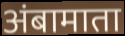
अंबामाता